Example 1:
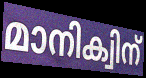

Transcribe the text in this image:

മാനിക്വിന്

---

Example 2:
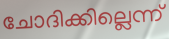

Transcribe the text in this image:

ചോദിക്കില്ലെന്ന്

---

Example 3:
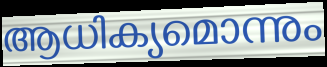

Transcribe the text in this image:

ആധിക്യമൊന്നും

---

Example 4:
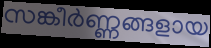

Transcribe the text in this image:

സങ്കീർണ്ണങ്ങളായ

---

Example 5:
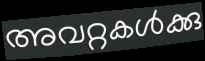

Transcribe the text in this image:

അവറ്റകൾക്കു